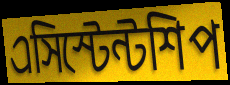
এসিস্টেন্টশিপ